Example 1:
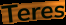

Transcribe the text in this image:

Teres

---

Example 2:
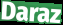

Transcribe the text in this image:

Daraz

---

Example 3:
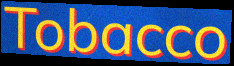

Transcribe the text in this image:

Tobacco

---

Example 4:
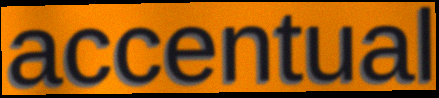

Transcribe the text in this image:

accentual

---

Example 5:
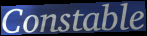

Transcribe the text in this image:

Constable